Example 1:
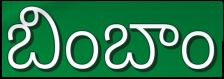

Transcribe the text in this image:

బింబాం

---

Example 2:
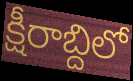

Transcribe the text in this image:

క్షీరాబ్దిలో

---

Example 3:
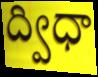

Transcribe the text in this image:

ద్విధా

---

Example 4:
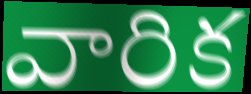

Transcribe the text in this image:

వారిక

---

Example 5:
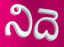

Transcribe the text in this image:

నిదె